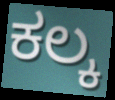
ಕಲ್ಕ